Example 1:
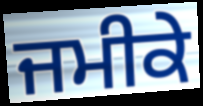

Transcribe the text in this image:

ਜਮੀਕੇ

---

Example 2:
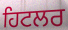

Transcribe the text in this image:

ਹਿਟਲਰ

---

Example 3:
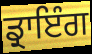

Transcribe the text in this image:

ਡ੍ਰਾਇੰਗ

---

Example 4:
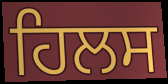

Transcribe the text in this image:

ਹਿਲਸ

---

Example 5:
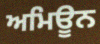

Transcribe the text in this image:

ਅਮਿਊਨ